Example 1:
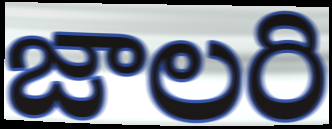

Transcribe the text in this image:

జాలరి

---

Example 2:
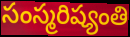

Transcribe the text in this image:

సంస్మరిష్యంతి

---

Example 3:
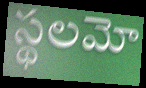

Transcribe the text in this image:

స్థలమో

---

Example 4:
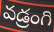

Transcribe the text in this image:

వడ్రంగి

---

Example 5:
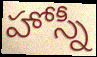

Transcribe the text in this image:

హోస్నీ